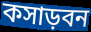
কসাড়বন